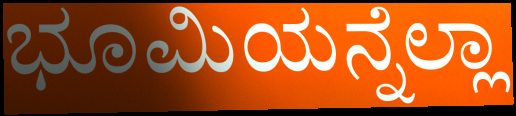
ಭೂಮಿಯನ್ನೆಲ್ಲಾ